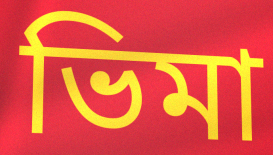
ভিমা